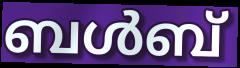
ബൾബ്